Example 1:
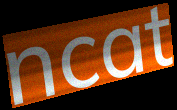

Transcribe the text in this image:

ncat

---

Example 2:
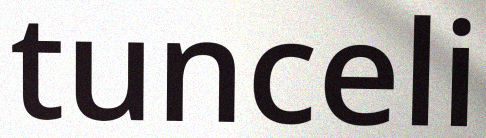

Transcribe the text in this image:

tunceli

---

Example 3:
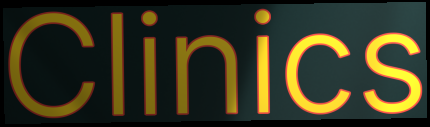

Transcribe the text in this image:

Clinics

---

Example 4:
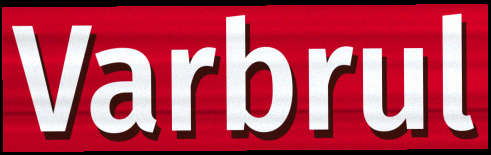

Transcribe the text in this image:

Varbrul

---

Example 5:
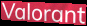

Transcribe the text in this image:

Valorant